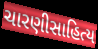
ચારણીસાહિત્ય